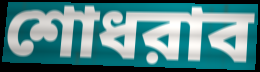
শোধরাব